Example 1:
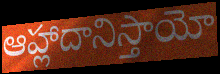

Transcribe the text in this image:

ఆహ్లాదానిస్తాయో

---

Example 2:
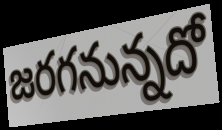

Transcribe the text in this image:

జరగనున్నదో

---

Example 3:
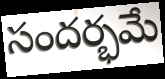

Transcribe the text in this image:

సందర్భమే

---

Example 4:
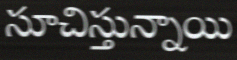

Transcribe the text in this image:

సూచిస్తున్నాయి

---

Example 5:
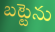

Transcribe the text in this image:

బట్టెను